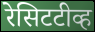
रेसिटटीव्ह